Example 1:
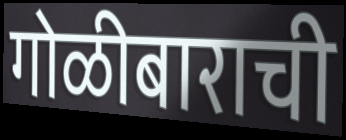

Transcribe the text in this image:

गोळीबाराची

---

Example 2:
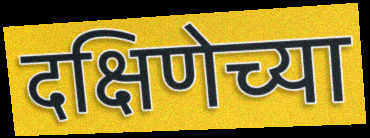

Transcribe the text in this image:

दक्षिणेच्या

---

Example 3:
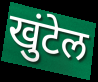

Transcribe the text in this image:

खुंटेल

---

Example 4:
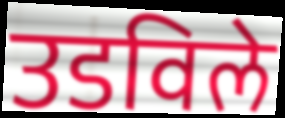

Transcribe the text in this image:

उडविले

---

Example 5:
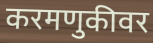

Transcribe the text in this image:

करमणुकीवर